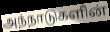
அந்நாடுகளின்